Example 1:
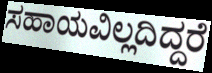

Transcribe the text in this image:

ಸಹಾಯವಿಲ್ಲದಿದ್ದರೆ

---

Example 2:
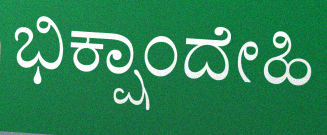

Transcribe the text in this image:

ಭಿಕ್ಷಾಂದೇಹಿ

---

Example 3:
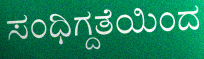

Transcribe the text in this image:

ಸಂಧಿಗ್ದತೆಯಿಂದ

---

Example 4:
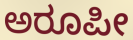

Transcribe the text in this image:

ಅರೂಪೀ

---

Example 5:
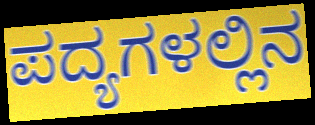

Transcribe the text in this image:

ಪದ್ಯಗಳಲ್ಲಿನ